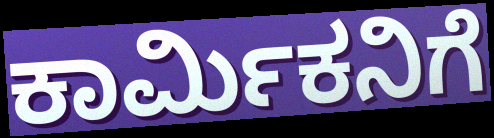
ಕಾರ್ಮಿಕನಿಗೆ